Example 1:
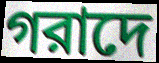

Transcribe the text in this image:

গরাদে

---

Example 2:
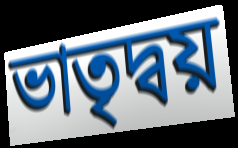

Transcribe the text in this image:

ভাতৃদ্বয়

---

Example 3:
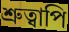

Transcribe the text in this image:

শ্রুত্বাপি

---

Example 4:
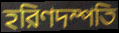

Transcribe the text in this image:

হরিণদম্পতি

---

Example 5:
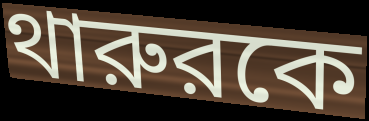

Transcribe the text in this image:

থারুরকে